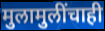
मुलामुलींचाही